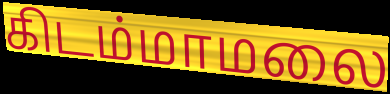
கிடம்மாமலை